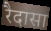
रैदासा